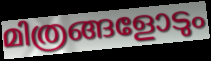
മിത്രങ്ങളോടും